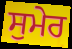
ਸੁਮੇਰ